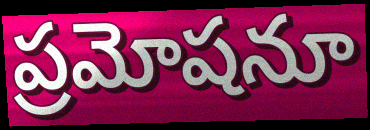
ప్రమోషనూ